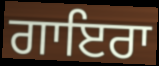
ਗਾਇਰਾ